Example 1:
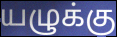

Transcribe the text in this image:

யழுக்கு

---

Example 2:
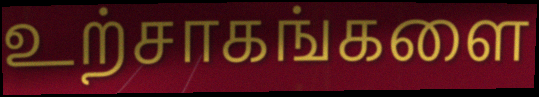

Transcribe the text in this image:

உற்சாகங்களை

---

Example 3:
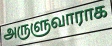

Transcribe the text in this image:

அருளுவாராக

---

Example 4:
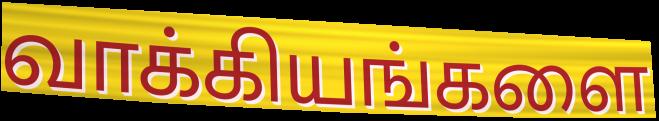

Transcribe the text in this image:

வாக்கியங்களை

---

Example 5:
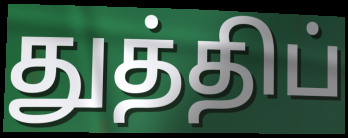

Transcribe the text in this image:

துத்திப்